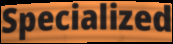
Specialized